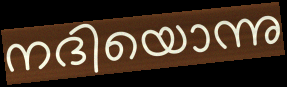
നദിയൊന്നു